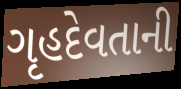
ગૃહદેવતાની